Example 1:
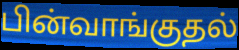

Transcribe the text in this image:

பின்வாங்குதல்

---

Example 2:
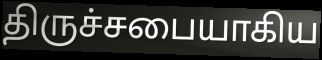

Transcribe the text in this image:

திருச்சபையாகிய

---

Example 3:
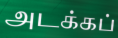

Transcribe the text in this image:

அடக்கப்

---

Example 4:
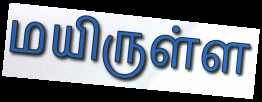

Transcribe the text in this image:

மயிருள்ள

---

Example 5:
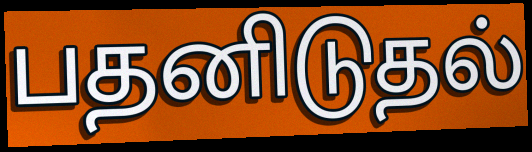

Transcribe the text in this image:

பதனிடுதல்